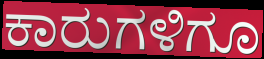
ಕಾರುಗಳಿಗೂ